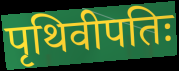
पृथिवीपतिः